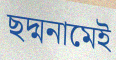
ছদ্মনামেই